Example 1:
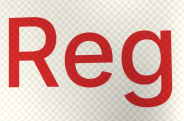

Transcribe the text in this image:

Reg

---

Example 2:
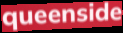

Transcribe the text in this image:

queenside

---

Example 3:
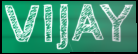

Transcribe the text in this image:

VIJAY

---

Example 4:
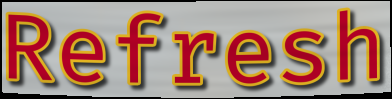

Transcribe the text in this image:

Refresh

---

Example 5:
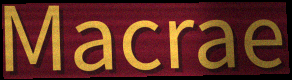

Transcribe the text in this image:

Macrae